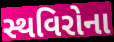
સ્થવિરોના